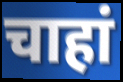
चाहां